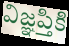
విజ్ఞప్తికి